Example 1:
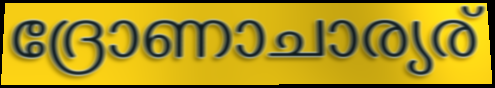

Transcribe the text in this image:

ദ്രോണാചാര്യര്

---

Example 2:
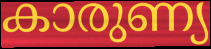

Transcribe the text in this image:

കാരുണ്യ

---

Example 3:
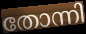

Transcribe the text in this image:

തോന്നി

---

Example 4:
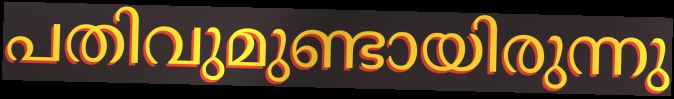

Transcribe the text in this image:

പതിവുമുണ്ടായിരുന്നു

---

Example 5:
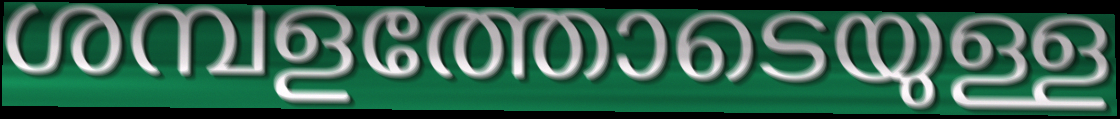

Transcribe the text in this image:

ശമ്പളത്തോടെയുള്ള